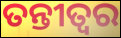
ତନ୍ତୀତ୍ୱର